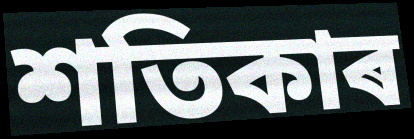
শতিকাৰ